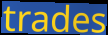
trades